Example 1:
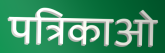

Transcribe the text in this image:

पत्रिकाओ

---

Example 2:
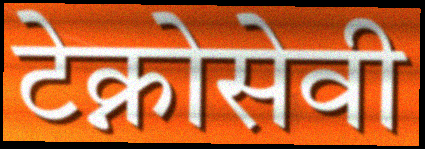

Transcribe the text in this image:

टेक्नोसेवी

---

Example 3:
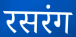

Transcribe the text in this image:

रसरंग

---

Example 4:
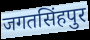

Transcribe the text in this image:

जगतसिंहपुर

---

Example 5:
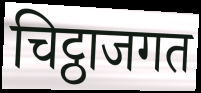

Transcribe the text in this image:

चिट्ठाजगत